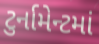
ટુર્નામેન્ટમાં